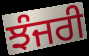
ਝੰਜਰੀ